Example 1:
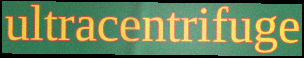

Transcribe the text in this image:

ultracentrifuge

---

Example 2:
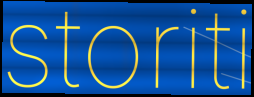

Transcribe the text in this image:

storiti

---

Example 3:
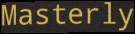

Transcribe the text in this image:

Masterly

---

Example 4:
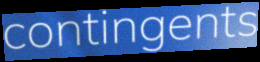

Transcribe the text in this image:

contingents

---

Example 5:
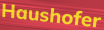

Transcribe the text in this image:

Haushofer